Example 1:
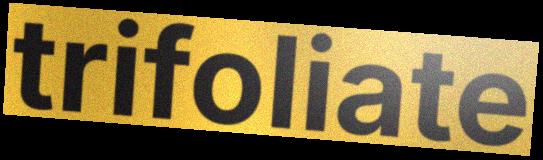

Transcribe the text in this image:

trifoliate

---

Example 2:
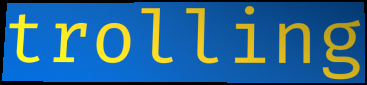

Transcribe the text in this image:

trolling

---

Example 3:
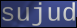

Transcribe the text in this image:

sujud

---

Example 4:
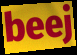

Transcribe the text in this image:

beej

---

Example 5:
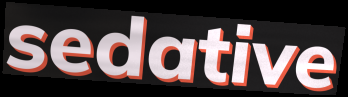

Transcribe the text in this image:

sedative